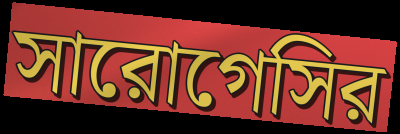
সারোগেসির